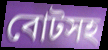
বোটসহ